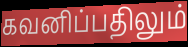
கவனிப்பதிலும்